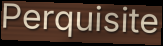
Perquisite